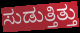
ಸುಡುತ್ತಿತ್ತು